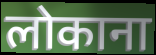
लोकाना